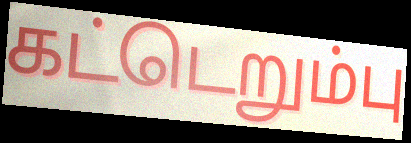
கட்டெறும்பு